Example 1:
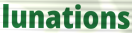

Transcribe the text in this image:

lunations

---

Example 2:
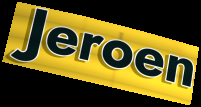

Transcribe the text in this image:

Jeroen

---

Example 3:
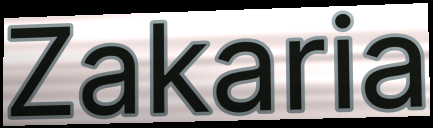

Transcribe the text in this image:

Zakaria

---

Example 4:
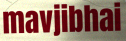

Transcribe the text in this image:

mavjibhai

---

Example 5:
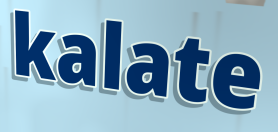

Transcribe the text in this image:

kalate